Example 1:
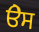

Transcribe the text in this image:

ੳੇਸ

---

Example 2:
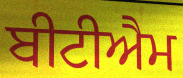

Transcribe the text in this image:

ਬੀਟੀਐਮ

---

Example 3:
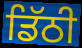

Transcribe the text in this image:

ਡਿੱਠੀ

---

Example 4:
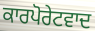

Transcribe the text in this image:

ਕਾਰਪੋਰੇਟਵਾਦ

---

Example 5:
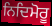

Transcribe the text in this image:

ਨਿਦਿਮੋਰੂ